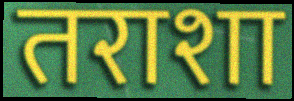
तराशा